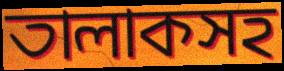
তালাকসহ